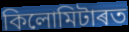
কিলোমিটাৰত